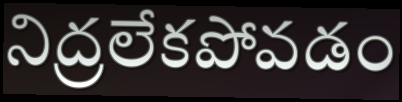
నిద్రలేకపోవడం